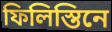
ফিলিস্তিনে